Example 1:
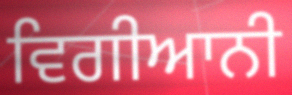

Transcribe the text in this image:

ਵਿਗੀਆਨੀ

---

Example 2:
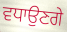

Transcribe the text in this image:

ਵਧਾਉਣਗੇ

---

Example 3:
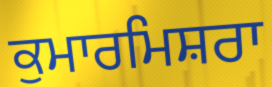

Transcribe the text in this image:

ਕੁਮਾਰਮਿਸ਼ਰਾ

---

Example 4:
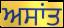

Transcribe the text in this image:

ਅਸਾਂਤ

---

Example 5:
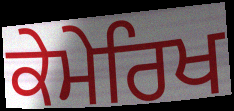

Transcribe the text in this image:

ਕੇਮੇਰਿਖ